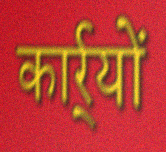
कार्र्यों